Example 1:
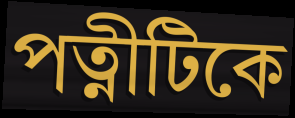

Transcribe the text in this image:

পত্নীটিকে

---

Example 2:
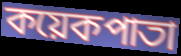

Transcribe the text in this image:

কয়েকপাতা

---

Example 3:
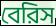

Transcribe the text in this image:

বেরিস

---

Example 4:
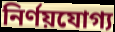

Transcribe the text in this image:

নির্ণয়যোগ্য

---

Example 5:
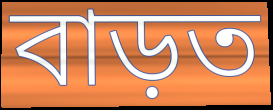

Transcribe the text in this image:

বাড়ত